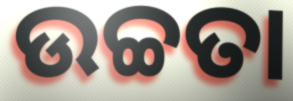
ଉଚ୍ଚତା